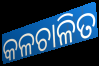
କଳଚାଳିତ